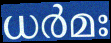
ധർമഃ